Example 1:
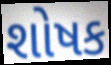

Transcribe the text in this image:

શોષક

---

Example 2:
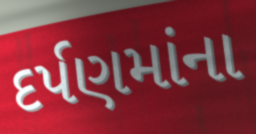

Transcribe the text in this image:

દર્પણમાંના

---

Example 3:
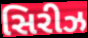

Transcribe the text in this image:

સિરીઝ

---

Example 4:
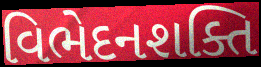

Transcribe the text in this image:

વિભેદનશક્તિ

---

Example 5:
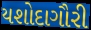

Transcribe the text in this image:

યશોદાગૌરી